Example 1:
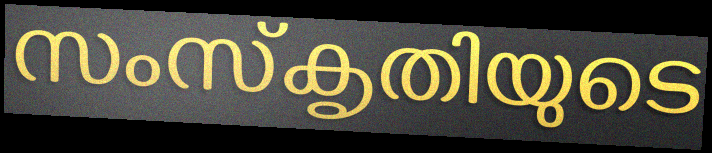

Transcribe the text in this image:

സംസ്‌കൃതിയുടെ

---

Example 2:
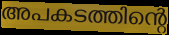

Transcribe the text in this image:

അപകടത്തിന്റെ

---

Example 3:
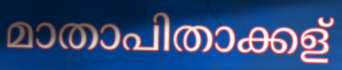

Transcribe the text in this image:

മാതാപിതാക്കള്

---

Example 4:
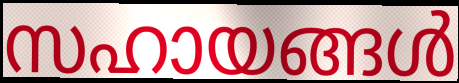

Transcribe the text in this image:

സഹായങ്ങൾ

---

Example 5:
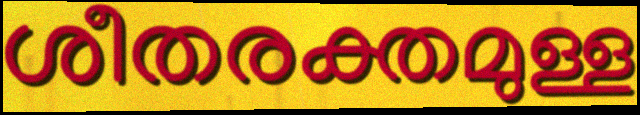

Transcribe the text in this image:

ശീതരക്തമുള്ള